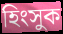
হিংসুক